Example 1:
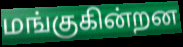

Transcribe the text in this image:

மங்குகின்றன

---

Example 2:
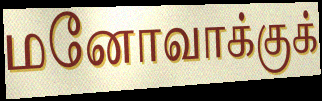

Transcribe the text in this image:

மனோவாக்குக்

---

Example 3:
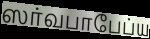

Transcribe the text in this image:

ஸர்வபாபேப்ய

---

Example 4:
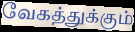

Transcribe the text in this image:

வேகத்துக்கும்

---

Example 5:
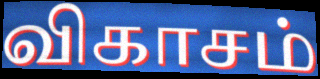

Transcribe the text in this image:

விகாசம்